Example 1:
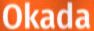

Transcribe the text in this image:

Okada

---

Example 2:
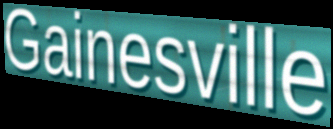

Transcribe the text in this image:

Gainesville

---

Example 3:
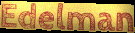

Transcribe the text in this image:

Edelman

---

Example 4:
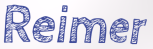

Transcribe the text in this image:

Reimer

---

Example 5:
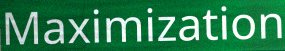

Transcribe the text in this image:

Maximization